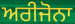
ਅਰੀਜੋਨਾ